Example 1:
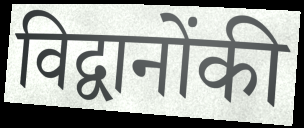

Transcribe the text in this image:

विद्वानोंकी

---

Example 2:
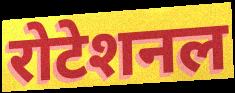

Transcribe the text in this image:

रोटेशनल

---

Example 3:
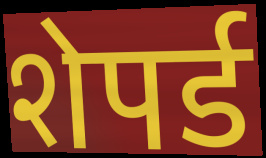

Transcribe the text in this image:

शेपर्ड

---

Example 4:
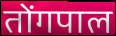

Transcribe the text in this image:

तोंगपाल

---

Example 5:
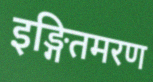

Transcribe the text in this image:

इङ्गितमरण